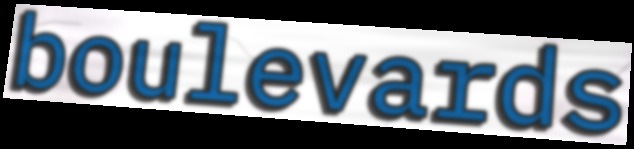
boulevards